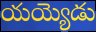
యయ్యెడు